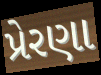
પ્રેરણા